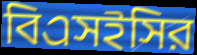
বিএসইসির